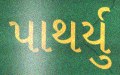
પાથર્યુ